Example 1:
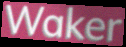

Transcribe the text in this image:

Waker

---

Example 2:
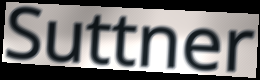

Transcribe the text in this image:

Suttner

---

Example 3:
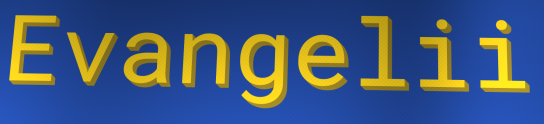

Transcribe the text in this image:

Evangelii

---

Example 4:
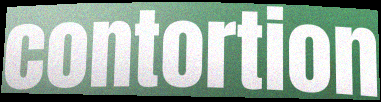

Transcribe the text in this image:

contortion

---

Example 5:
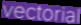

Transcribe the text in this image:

vectorial